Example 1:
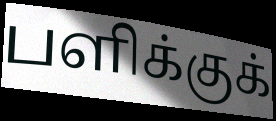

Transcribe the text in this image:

பளிக்குக்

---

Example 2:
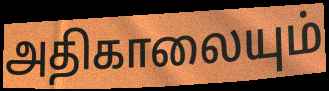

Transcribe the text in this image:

அதிகாலையும்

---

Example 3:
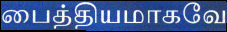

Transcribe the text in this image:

பைத்தியமாகவே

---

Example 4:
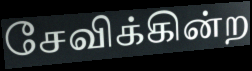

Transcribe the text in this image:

சேவிக்கின்ற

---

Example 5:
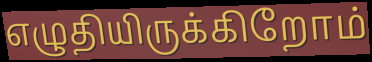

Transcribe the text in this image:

எழுதியிருக்கிறோம்